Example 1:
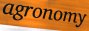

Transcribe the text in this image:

agronomy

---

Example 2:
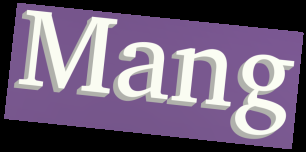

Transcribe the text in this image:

Mang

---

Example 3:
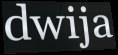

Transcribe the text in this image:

dwija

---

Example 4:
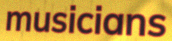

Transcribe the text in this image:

musicians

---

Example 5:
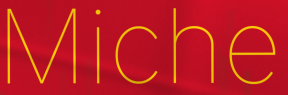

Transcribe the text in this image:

Miche